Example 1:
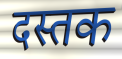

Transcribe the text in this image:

दस्तक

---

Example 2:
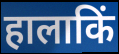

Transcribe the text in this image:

हालाकिं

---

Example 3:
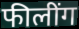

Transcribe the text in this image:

फीलींग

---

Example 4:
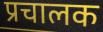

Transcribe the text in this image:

प्रचालक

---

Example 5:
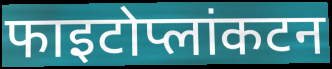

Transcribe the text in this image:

फाइटोप्लांकटन